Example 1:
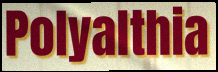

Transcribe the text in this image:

Polyalthia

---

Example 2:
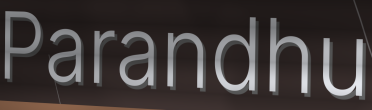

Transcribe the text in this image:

Parandhu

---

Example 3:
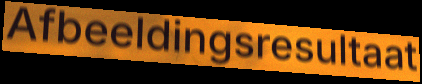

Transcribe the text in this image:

Afbeeldingsresultaat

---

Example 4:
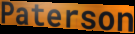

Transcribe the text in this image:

Paterson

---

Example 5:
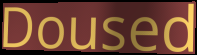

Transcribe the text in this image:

Doused